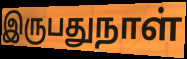
இருபதுநாள்